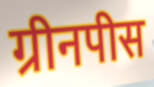
ग्रीनपीस